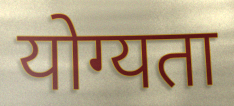
योग्यता